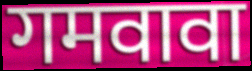
गमवावा